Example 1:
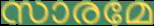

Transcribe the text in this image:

സാരമേ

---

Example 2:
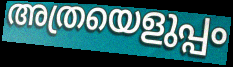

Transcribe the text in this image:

അത്രയെളുപ്പം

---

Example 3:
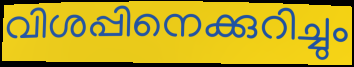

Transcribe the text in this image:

വിശപ്പിനെക്കുറിച്ചും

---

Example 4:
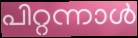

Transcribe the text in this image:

പിറ്റന്നാൾ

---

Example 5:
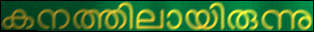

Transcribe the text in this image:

കനത്തിലായിരുന്നു